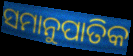
ସମାନୁପାତିକ